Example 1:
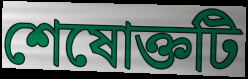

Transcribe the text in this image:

শেষোক্তটি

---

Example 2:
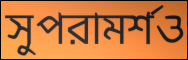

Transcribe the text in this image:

সুপরামর্শও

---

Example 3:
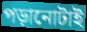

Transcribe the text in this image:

পড়ানোটাই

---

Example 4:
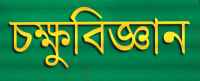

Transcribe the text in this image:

চক্ষুবিজ্ঞান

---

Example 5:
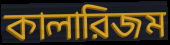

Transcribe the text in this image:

কালারিজম